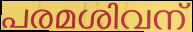
പരമശിവന്